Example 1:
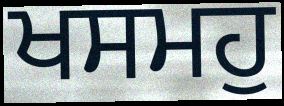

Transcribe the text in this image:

ਖਸਮਹੁ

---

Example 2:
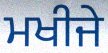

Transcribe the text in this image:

ਮਖੀਜੇ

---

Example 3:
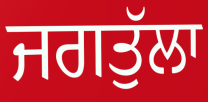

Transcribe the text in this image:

ਜਗਤੁੱਲਾ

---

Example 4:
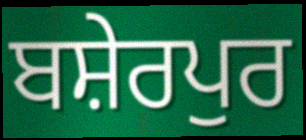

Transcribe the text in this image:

ਬਸ਼ੇਰਪੁਰ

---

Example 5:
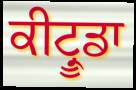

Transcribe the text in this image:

ਕੀਟ੍ਰੂਡਾ